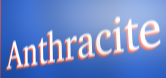
Anthracite